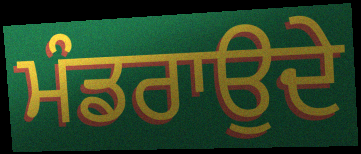
ਮੰਡਰਾਉਦੇ